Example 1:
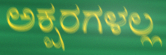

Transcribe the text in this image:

ಅಕ್ಷರಗಳಲ್ಲ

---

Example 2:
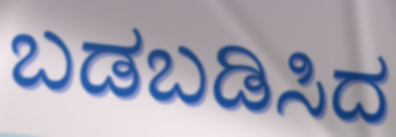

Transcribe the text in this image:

ಬಡಬಡಿಸಿದ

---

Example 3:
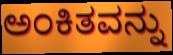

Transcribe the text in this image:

ಅಂಕಿತವನ್ನು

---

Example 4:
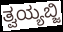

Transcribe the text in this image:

ತ್ವಯ್ಯಬ್ಜಿ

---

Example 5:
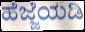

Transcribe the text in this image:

ಹೆಜ್ಜೆಯಡಿ